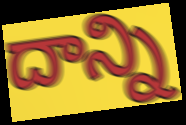
దాన్ని